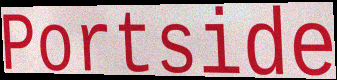
Portside